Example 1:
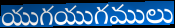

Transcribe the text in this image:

యుగయుగములు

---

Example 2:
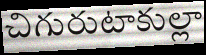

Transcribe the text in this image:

చిగురుటాకుల్లా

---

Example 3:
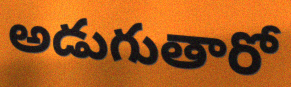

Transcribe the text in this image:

అడుగుతారో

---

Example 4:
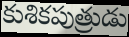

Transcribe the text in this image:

కుశికపుత్రుడు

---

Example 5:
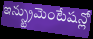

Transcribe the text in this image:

ఇన్స్ట్రుమెంటేషన్లో